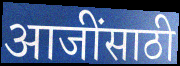
आजींसाठी